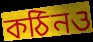
কঠিনও